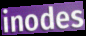
inodes